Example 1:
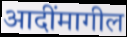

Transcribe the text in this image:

आदींमागील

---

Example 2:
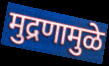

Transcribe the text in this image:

मुद्रणामुळे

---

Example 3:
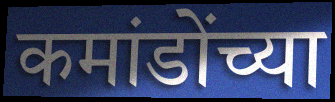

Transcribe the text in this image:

कमांडोंच्या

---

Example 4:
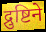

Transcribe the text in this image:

द्रुष्टिने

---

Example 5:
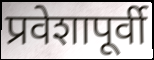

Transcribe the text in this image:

प्रवेशापूर्वी